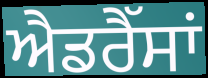
ਐਡਰੈੱਸਾਂ